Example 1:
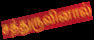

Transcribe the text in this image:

சத்துருவினால்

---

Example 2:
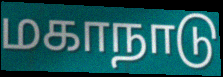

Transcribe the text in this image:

மகாநாடு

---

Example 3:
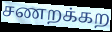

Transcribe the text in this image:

சணறக்கற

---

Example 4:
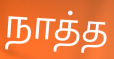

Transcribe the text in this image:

நாத்த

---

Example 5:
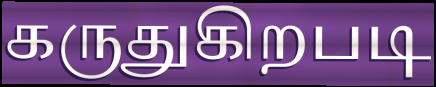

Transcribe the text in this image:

கருதுகிறபடி